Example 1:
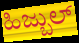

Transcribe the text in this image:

ಹಿಜ್ಬುಲ್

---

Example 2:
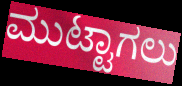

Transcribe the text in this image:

ಮುಟ್ಟಾಗಲು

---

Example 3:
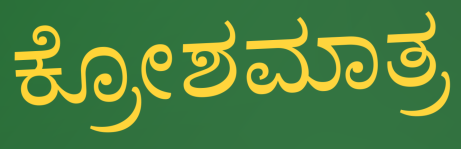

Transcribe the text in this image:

ಕ್ರೋಶಮಾತ್ರ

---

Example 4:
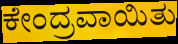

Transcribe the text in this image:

ಕೇಂದ್ರವಾಯಿತು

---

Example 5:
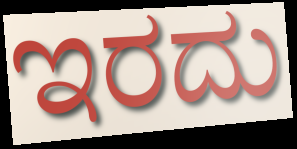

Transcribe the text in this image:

ಇರದು